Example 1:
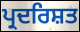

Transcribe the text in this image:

ਪ੍ਰਦਰਿਸ਼ਤ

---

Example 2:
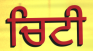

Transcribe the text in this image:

ਚਿਟੀ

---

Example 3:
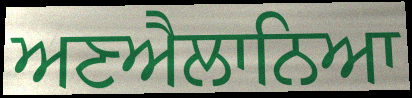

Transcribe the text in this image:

ਅਣਐਲਾਨਿਆ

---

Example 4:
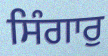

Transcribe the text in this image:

ਸਿੰਗਾਰੁ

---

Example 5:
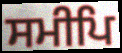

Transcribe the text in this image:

ਸਮੀਪਿ